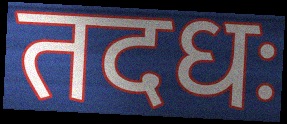
तदधः